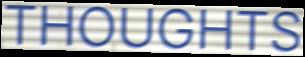
THOUGHTS